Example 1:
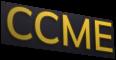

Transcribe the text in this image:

CCME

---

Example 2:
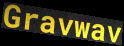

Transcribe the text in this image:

Gravwav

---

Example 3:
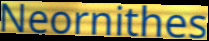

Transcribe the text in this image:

Neornithes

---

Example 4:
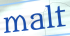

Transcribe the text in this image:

malt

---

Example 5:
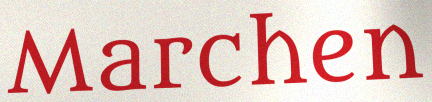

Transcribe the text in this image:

Marchen